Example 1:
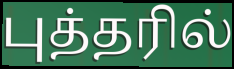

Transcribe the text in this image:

புத்தரில்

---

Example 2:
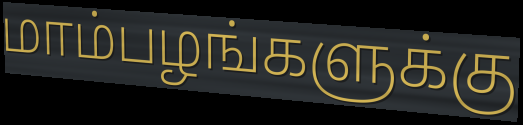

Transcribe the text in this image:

மாம்பழங்களுக்கு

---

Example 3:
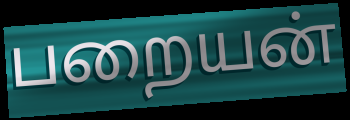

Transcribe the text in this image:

பறையன்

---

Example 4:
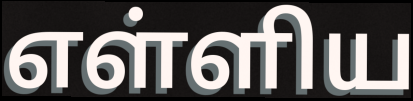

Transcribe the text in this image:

எள்ளிய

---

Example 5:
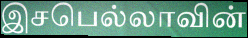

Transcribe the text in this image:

இசபெல்லாவின்